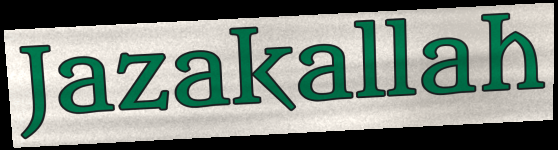
Jazakallah